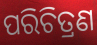
ପରିଚିତ୍ରଣ